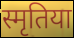
स्मृतिया